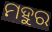
ମହୁର